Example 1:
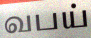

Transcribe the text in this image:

வபய்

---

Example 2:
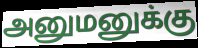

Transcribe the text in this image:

அனுமனுக்கு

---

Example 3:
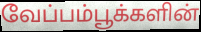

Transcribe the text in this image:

வேப்பம்பூக்களின்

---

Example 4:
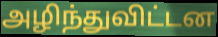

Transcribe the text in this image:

அழிந்துவிட்டன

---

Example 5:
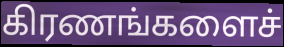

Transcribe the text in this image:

கிரணங்களைச்